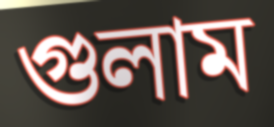
গুলাম